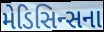
મેડિસિન્સના